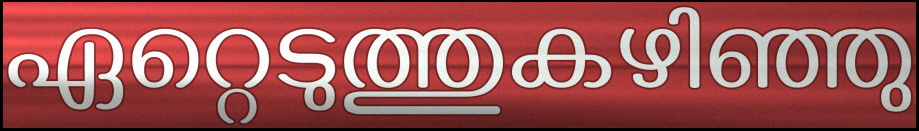
ഏറ്റെടുത്തുകഴിഞ്ഞു